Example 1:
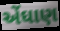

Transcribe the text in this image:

એંઘાણ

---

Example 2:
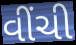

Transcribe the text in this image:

વીંચી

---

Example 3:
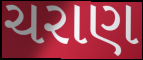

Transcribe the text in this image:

ચરાણ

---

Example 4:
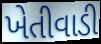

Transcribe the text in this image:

ખેતીવાડી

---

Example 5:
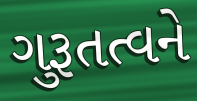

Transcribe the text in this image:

ગુરૂતત્વને